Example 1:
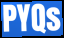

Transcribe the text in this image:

PYQs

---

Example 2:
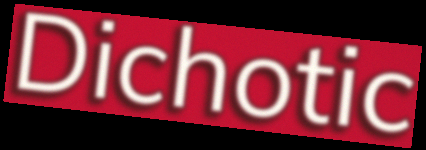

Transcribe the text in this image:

Dichotic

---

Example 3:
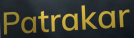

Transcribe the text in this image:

Patrakar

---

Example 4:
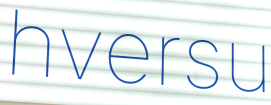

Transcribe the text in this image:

hversu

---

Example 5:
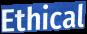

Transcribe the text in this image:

Ethical